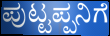
ಪುಟ್ಟಪ್ಪನಿಗೆ